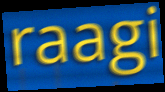
raagi